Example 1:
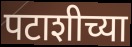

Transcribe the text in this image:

पटाशीच्या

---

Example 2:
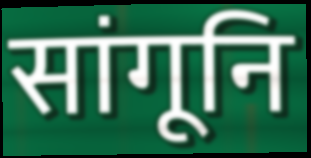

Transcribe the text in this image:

सांगूनि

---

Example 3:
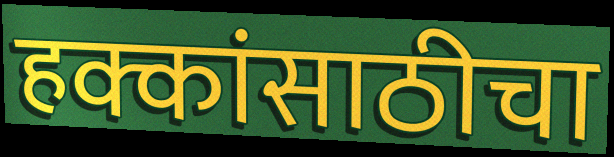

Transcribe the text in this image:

हक्कांसाठीचा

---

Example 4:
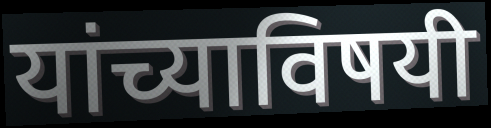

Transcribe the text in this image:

यांच्याविषयी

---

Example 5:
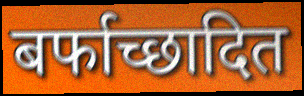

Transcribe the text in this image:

बर्फाच्छादित